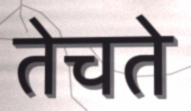
तेचते